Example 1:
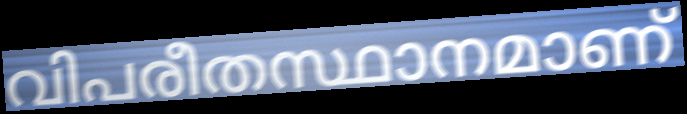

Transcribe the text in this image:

വിപരീതസ്ഥാനമാണ്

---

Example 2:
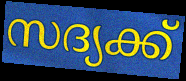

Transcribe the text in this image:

സദ്യക്ക്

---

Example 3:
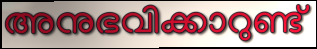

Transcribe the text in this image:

അനുഭവിക്കാറുണ്ട്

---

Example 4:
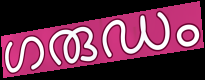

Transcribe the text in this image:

ഗരുഡം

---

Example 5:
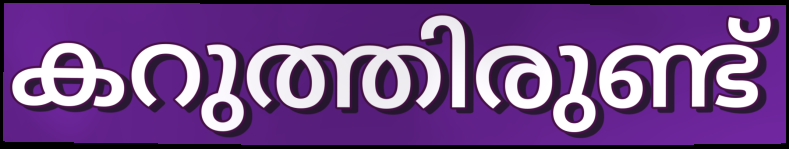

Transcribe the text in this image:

കറുത്തിരുണ്ട്